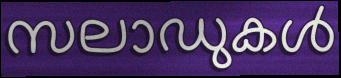
സലാഡുകൾ